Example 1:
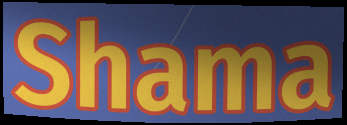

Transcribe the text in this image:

Shama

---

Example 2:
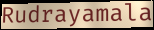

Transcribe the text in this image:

Rudrayamala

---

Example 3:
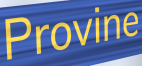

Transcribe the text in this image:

Provine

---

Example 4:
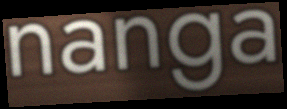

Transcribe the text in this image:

nanga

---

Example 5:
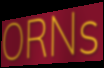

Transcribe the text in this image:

ORNs